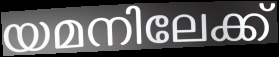
യമനിലേക്ക്